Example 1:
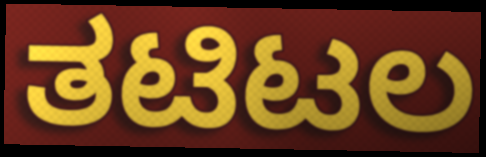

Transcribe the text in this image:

ತಟಿಟಲ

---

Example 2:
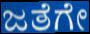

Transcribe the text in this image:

ಜತೆಗೇ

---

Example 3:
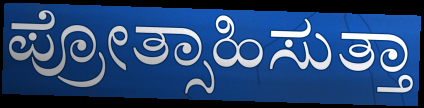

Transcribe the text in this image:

ಪ್ರೋತ್ಸಾಹಿಸುತ್ತಾ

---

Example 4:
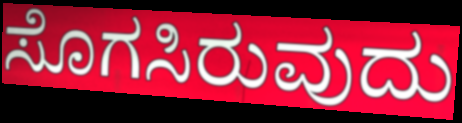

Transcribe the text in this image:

ಸೊಗಸಿರುವುದು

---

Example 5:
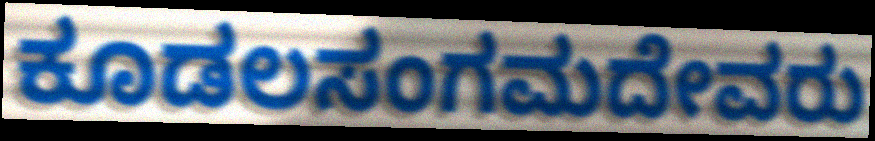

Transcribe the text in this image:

ಕೂಡಲಸಂಗಮದೇವರು